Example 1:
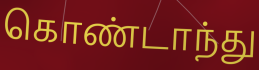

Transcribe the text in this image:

கொண்டாந்து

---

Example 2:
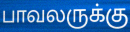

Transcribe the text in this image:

பாவலருக்கு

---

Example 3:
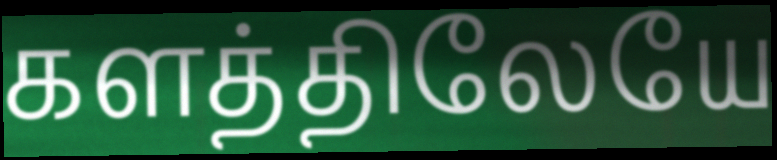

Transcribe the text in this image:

களத்திலேயே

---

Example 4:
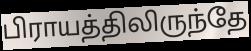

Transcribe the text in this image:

பிராயத்திலிருந்தே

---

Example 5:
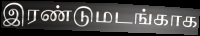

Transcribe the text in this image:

இரண்டுமடங்காக